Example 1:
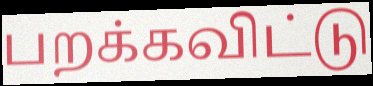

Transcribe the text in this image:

பறக்கவிட்டு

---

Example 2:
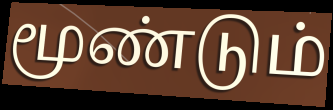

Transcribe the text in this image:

மூண்டும்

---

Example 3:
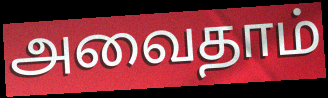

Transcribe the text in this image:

அவைதாம்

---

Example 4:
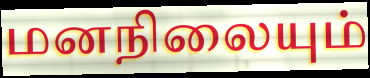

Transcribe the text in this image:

மனநிலையும்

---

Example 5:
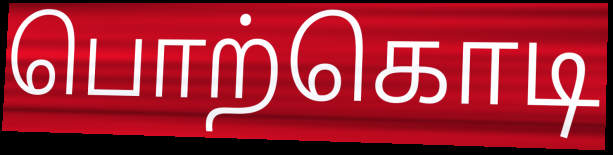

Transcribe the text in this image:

பொற்கொடி